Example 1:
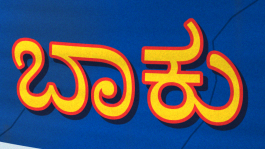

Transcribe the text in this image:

ಬಾಕು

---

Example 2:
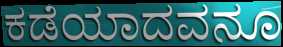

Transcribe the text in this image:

ಕಡೆಯಾದವನೂ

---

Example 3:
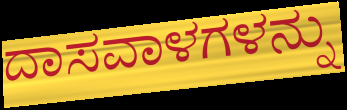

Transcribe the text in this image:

ದಾಸವಾಳಗಳನ್ನು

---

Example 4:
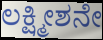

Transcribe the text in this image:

ಲಕ್ಷ್ಮೀಶನೇ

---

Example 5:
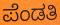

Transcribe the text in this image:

ಪೆಂಡತಿ